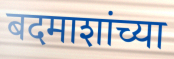
बदमाशांच्या